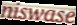
niswase